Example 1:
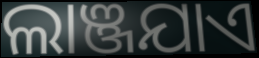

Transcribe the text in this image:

ଲାଞ୍ଜଯାଏ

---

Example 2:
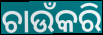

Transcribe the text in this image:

ଚାଉଁକରି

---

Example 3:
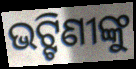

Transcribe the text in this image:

ଭଟ୍ଟିଣୀଙ୍କୁ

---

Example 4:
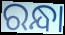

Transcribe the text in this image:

ରନ୍ଧା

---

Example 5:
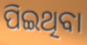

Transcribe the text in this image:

ପିଇଥିବା